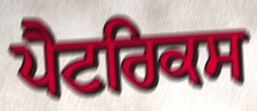
ਪੈਟਰਿਕਸ